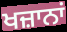
ਖਜ਼ਾਨਾਂ